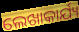
ଲେଖାକାର୍ଯ୍ୟ